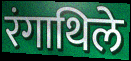
रंगाथिले